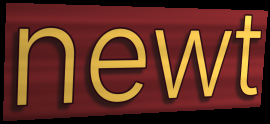
newt